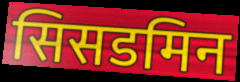
सिसडमिन